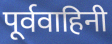
पूर्ववाहिनी